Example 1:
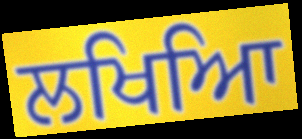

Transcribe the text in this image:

ਲਖਿਆਿ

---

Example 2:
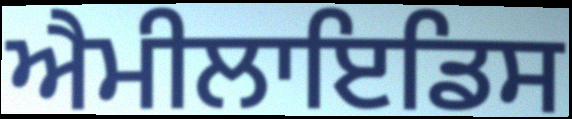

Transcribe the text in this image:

ਐਮੀਲਾਇਡਿਸ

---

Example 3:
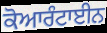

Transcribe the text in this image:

ਕੋਆਰੰਟਾਈਨ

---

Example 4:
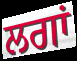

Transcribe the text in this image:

ਲਗਾਂ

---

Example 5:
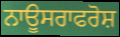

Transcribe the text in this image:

ਨਾਊਸਰਾਫਰੋਸ਼